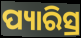
ପ୍ୟାରିସ୍ର